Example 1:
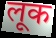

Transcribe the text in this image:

लूक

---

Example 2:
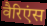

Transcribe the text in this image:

वैरिएंस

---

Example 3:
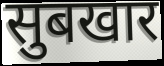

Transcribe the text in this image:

सुबखार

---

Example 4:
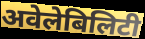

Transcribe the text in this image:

अवेलेबिलिटी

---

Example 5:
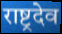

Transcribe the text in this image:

राष्ट्रदेव